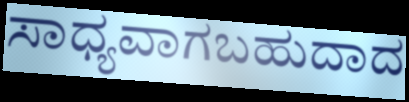
ಸಾಧ್ಯವಾಗಬಹುದಾದ